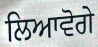
ਲਿਆਵੋਗੇ